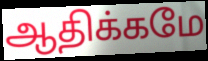
ஆதிக்கமே